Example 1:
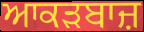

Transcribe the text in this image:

ਆਕੜਬਾਜ਼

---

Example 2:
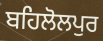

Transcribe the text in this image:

ਬਹਿਲੋਲਪੁਰ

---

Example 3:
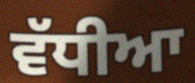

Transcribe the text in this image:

ਵੱਧੀਆ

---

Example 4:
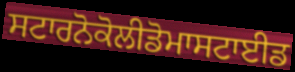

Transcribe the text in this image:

ਸਟਾਰਨੋਕੋਲੀਡੋਮਾਸਟਾਈਡ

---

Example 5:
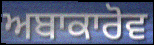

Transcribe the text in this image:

ਅਬਾਕਾਰੋਵ